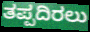
ತಪ್ಪದಿರಲು